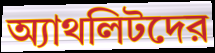
অ্যাথলিটদের